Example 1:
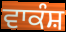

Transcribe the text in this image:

ਵਾਕੰਸ਼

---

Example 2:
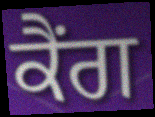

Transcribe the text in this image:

ਕੈਂਗ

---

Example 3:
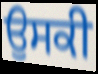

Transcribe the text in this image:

ਉਸਕੀ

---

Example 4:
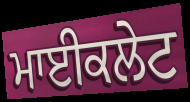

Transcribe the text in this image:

ਮਾਈਕਲੇਟ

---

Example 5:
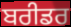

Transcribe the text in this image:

ਬਰੀਡਰ